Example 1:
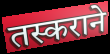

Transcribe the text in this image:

तस्कराने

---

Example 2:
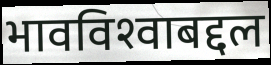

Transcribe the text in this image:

भावविश्वाबद्दल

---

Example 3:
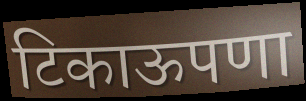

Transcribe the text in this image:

टिकाऊपणा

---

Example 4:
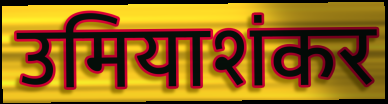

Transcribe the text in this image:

उमियाशंकर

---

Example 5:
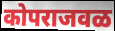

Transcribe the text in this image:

कोपराजवळ